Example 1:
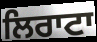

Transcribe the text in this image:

ਲਿਰਾਟਾ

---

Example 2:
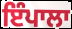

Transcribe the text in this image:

ਇੰਪਾਲਾ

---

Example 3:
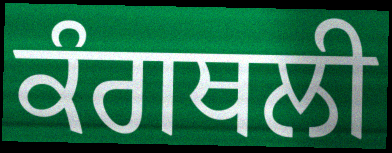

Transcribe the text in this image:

ਕੰਗਥਲੀ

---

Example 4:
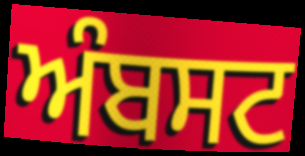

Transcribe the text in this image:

ਅੰਬਸਟ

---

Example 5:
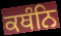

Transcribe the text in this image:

ਕਥੰਨਿ